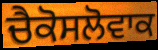
ਚੈਕੋਸਲੋਵਾਕ